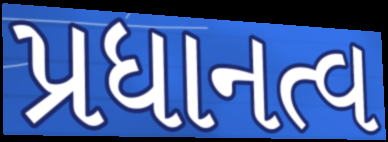
પ્રધાનત્વ